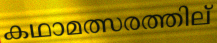
കഥാമത്സരത്തില്